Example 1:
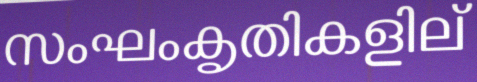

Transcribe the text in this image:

സംഘംകൃതികളില്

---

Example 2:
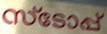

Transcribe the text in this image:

സ്ടോപ്പ്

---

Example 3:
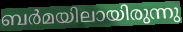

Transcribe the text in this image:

ബർമയിലായിരുന്നു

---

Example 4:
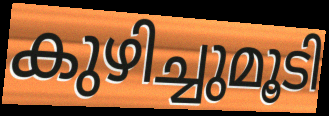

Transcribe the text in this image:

കുഴിച്ചുമൂടി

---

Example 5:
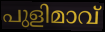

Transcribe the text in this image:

പുളിമാവ്